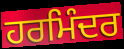
ਹਰਮਿੰਦਰ